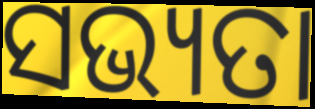
ସଭ୍ଯତା